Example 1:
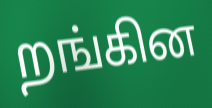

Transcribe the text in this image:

றங்கின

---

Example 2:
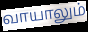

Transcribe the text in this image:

வாயாலும்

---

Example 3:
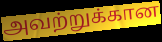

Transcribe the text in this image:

அவற்றுக்கான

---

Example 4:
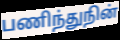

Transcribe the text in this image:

பணிந்துநின்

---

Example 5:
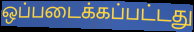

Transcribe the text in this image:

ஒப்படைக்கப்பட்டது